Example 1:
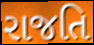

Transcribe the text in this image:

રાજતિ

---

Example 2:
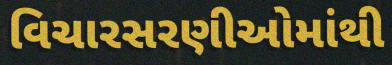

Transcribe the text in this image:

વિચારસરણીઓમાંથી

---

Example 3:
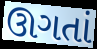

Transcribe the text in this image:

ઊગતાં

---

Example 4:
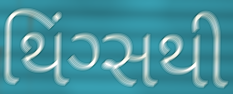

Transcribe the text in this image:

થિંગ્સથી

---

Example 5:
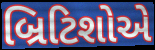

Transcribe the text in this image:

બ્રિટિશોએ